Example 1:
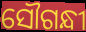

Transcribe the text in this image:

ସୌଗନ୍ଧୀ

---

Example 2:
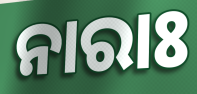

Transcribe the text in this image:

ନାରାଃ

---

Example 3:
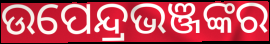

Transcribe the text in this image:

ଉପେନ୍ଦ୍ରଭଞ୍ଜଙ୍କର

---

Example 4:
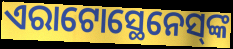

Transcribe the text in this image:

ଏରାଟୋସ୍ଥେନେସ୍‌ଙ୍କ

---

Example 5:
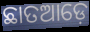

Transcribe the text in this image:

ଛାତଆଡ଼େ